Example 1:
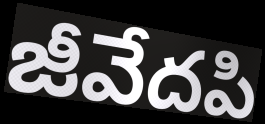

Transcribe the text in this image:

జీవేదపి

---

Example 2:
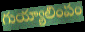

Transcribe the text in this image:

గుయ్యాలింపం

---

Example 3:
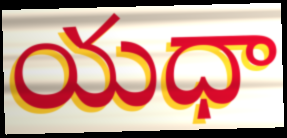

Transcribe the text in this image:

యధా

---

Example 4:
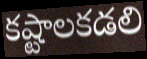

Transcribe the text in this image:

కష్టాలకడలి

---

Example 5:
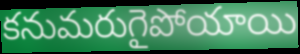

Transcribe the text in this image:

కనుమరుగైపోయాయి